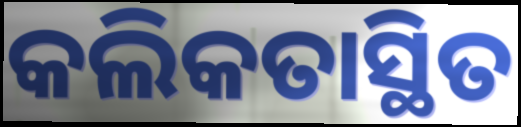
କଲିକତାସ୍ଥିତ